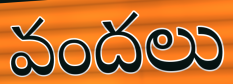
వందలు